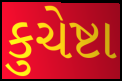
કુચેષ્ટા